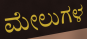
ಮೇಲುಗಳ